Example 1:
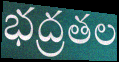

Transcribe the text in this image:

భద్రతల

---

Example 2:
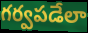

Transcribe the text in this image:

గర్వపడేలా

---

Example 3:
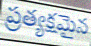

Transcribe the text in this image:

ప్రత్యక్షమైన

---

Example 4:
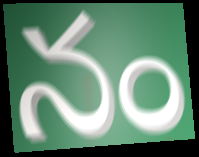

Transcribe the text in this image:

నం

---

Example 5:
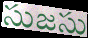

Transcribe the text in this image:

సుజసు